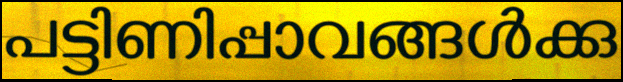
പട്ടിണിപ്പാവങ്ങൾക്കു